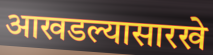
आखडल्यासारखे